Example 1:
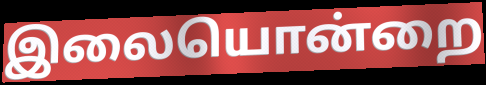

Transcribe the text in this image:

இலையொன்றை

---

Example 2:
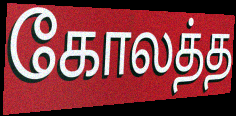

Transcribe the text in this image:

கோலத்த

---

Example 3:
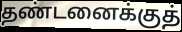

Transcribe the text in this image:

தண்டனைக்குத்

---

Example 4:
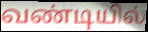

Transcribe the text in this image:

வண்டியில்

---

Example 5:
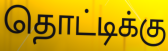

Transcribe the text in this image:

தொட்டிக்கு